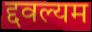
द्दवल्यम